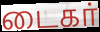
டைகர்